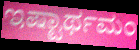
ಇಷ್ಟಾರ್ಥಮಂ